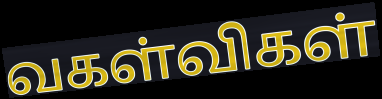
வகள்விகள்